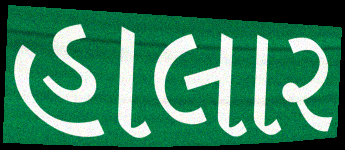
હાલાર